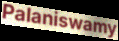
Palaniswamy